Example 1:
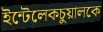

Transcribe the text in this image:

ইন্টেলেকচুয়ালকে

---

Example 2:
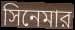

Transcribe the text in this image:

সিনেমার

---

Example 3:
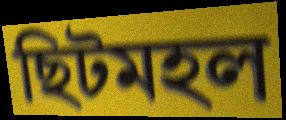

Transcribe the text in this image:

ছিটমহল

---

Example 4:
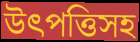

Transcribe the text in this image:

উৎপত্তিসহ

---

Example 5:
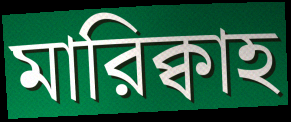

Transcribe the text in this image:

মারিক্বাহ